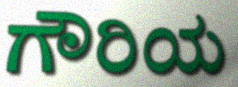
ಗೌರಿಯ